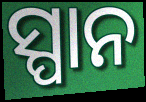
ସ୍ପାନ